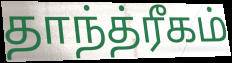
தாந்த்ரீகம்